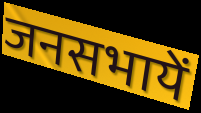
जनसभायें